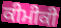
ਕੀਮੀਕੀ